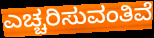
ಎಚ್ಚರಿಸುವಂತಿವೆ